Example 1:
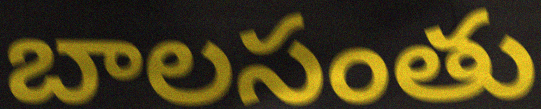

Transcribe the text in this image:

బాలసంతు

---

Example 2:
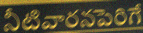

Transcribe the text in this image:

నీటివారనపెరిగే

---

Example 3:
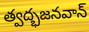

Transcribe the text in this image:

త్వద్భజనవాన్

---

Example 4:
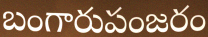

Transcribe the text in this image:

బంగారుపంజరం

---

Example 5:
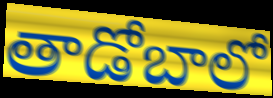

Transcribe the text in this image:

తాడోబాలో